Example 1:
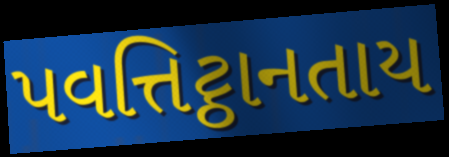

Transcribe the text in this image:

પવત્તિટ્ઠાનતાય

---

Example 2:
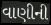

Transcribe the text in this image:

વાણીની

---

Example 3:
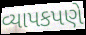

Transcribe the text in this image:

વ્યાપકપણે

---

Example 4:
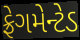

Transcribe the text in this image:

ફ્રેગમેન્ટેડ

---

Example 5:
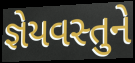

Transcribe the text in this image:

જ્ઞેયવસ્તુને